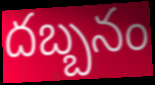
దబ్బనం